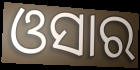
ଓସାର